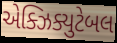
એક્ઝિક્યુટેબલ